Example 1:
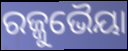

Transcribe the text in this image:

ରଜ୍ଜୁଭୈୟା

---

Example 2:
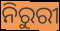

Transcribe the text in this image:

ନିରୁରୀ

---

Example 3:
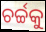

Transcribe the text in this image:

ଚର୍ଚ୍ଚକୁ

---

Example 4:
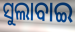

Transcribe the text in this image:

ସୁଲାବାଇ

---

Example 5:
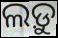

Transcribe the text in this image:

ଲଡ଼ୁ